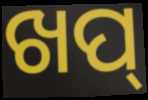
ଖପ୍